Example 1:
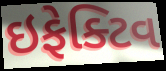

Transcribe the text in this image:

ઇફેક્ટિવ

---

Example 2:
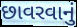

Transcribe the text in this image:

છાવરવાનું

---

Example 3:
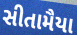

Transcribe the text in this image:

સીતામૈયા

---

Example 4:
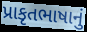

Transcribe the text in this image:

પ્રાકૃતભાષાનું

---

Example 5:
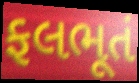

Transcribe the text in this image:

ફલભૂતં